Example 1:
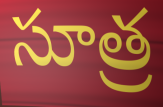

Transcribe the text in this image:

సూత్ర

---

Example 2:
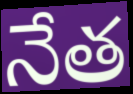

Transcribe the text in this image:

నేత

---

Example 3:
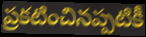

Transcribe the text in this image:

ప్రకటించినప్పటికీ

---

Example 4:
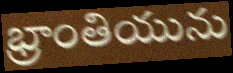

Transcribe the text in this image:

భ్రాంతియును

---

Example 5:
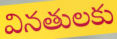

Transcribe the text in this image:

వినతులకు